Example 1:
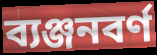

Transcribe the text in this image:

ব্যঞ্জনবৰ্ণ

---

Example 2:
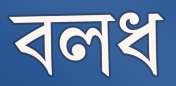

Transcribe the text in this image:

বলধ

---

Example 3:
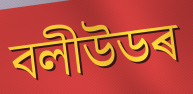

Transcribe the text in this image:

বলীউডৰ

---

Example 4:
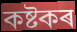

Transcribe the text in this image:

কষ্টকৰ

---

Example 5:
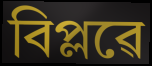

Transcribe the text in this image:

বিপ্লৱে